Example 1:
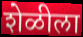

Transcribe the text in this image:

शेळीला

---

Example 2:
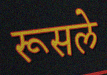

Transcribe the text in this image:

रूसले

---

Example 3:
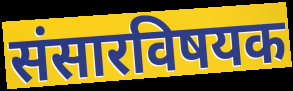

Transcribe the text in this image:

संसारविषयक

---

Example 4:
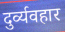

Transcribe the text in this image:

दुर्व्यवहार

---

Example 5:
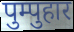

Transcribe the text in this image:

पुम्पुहार